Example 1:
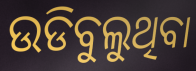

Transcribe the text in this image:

ଉଡିବୁଲୁଥିବା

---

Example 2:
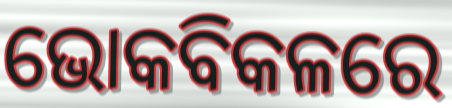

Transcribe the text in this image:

ଭୋକବିକଳରେ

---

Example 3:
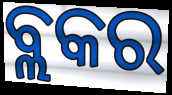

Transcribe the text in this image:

ବ୍ଲକର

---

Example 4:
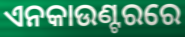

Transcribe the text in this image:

ଏନକାଉଣ୍ଟରରେ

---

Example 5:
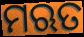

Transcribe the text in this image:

ମଋତ